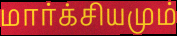
மார்க்சியமும்